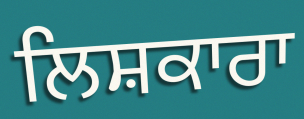
ਲਿਸ਼ਕਾਰਾ